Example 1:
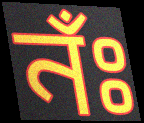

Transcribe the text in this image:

নঁঃ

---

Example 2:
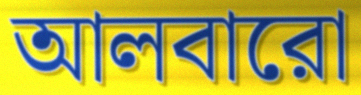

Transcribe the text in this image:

আলবারো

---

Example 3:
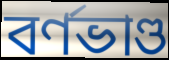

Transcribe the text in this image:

বর্ণভাণ্ড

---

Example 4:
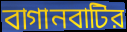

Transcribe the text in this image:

বাগানবাটির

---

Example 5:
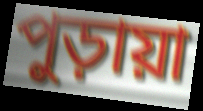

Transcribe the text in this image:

পুড়ায়া